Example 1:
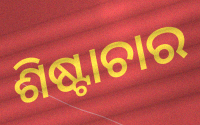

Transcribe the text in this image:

ଶିଷ୍ଟାଚାର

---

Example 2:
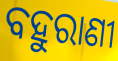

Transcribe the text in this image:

ବହୁରାଣୀ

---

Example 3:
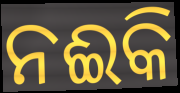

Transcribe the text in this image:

ନଈକି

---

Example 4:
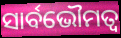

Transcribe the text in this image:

ସାର୍ବଭୌମତ୍ଵ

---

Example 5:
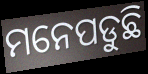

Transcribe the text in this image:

ମନେପଡୁଛି